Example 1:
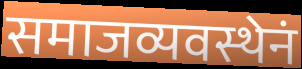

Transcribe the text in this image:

समाजव्यवस्थेनं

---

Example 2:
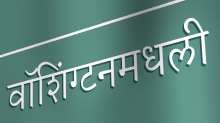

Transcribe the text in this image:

वॉशिंग्टनमधली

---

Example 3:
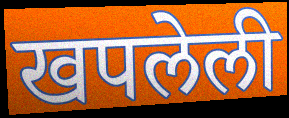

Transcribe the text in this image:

खपलेली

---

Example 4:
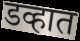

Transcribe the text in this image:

डव्हात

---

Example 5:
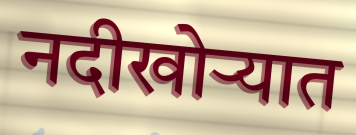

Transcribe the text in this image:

नदीखोर्‍यात